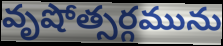
వృషోత్సర్గమును